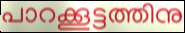
പാറക്കൂട്ടത്തിനു